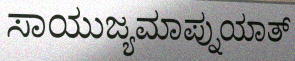
ಸಾಯುಜ್ಯಮಾಪ್ನುಯಾತ್